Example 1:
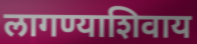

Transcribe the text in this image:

लागण्याशिवाय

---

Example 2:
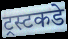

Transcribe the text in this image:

ट्रस्टकडे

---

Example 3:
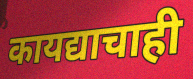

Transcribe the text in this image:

कायद्याचाही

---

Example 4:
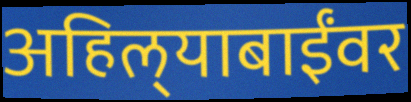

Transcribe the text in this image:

अहिल्याबाईंवर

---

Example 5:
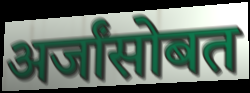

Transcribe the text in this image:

अर्जांसोबत